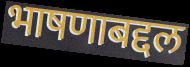
भाषणाबद्दल